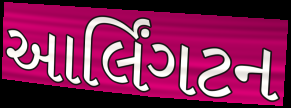
આર્લિંગટન